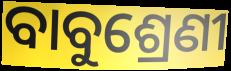
ବାବୁଶ୍ରେଣୀ